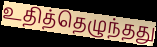
உதித்தெழுந்தது